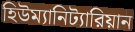
হিউম্যানিট্যারিয়ান